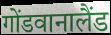
गोंडवानालैंड